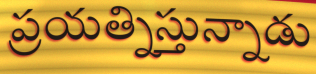
ప్రయత్నిస్తున్నాడు